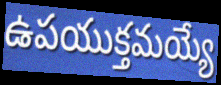
ఉపయుక్తమయ్యే